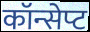
कॉन्‍सेप्‍ट